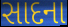
સાદના